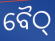
ବୈଠ୍